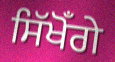
ਸਿੱਖੋਁਗੇ